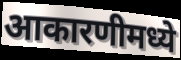
आकारणीमध्ये